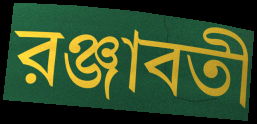
রঞ্জাবতী